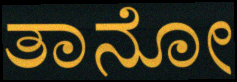
ತಾನೋ